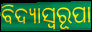
ବିଦ୍ୟାସ୍ୱରୂପା